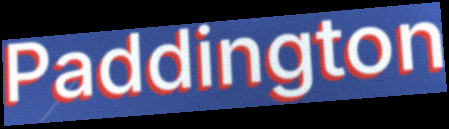
Paddington